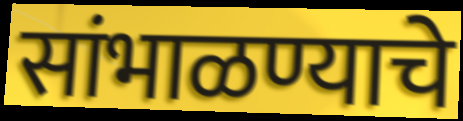
सांभाळण्याचे